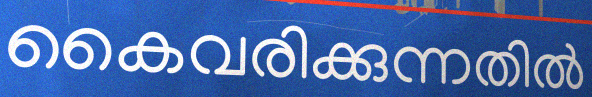
കൈവരിക്കുന്നതിൽ